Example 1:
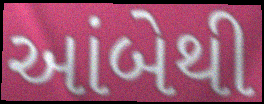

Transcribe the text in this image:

આંબેથી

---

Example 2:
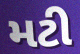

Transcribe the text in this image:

મટી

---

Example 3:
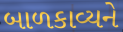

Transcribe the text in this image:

બાળકાવ્યને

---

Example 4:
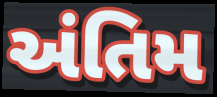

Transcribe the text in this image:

અંતિમ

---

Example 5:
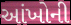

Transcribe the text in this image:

આંખોની